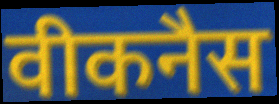
वीकनैस